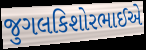
જુગલકિશોરભાઈએ